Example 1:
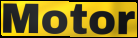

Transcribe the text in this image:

Motor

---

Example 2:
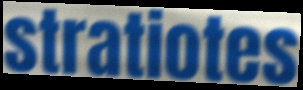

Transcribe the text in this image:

stratiotes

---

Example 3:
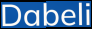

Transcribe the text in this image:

Dabeli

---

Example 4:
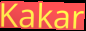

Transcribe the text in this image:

Kakar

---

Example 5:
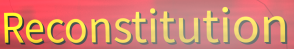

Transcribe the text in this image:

Reconstitution